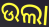
ଉଲା